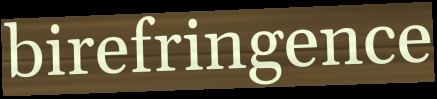
birefringence